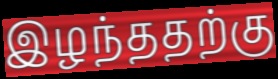
இழந்ததற்கு